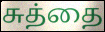
சுத்தை